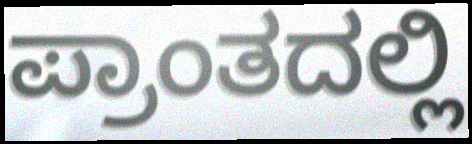
ಪ್ರಾಂತದಲ್ಲಿ